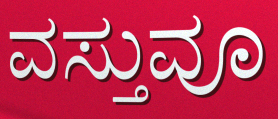
ವಸ್ತುವೂ